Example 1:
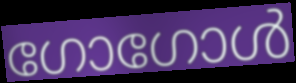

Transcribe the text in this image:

ഗോഗോൾ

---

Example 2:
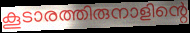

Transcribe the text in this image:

കൂടാരത്തിരുനാളിന്റെ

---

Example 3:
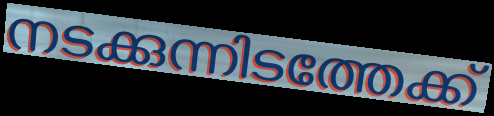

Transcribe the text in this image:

നടക്കുന്നിടത്തേക്ക്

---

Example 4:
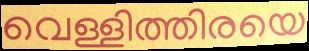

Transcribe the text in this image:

വെള്ളിത്തിരയെ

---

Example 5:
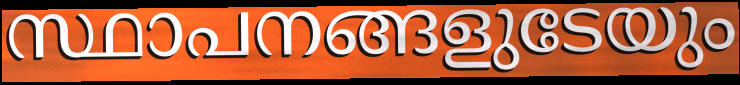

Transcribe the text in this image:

സ്ഥാപനങ്ങളുടേയും